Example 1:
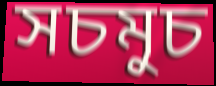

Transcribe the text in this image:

সচমুচ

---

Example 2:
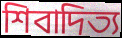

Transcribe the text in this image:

শিবাদিত্য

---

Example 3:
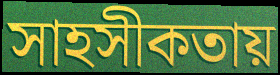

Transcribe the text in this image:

সাহসীকতায়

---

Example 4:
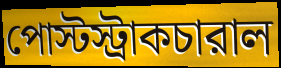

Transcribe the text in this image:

পোস্টস্ট্রাকচারাল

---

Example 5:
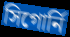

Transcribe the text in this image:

সিগোর্নি